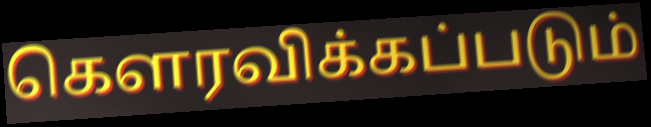
கௌரவிக்கப்படும்